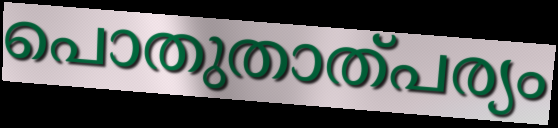
പൊതുതാത്പര്യം